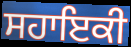
ਸਹਾਇਕੀ